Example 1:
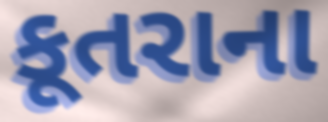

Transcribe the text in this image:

કૂતરાના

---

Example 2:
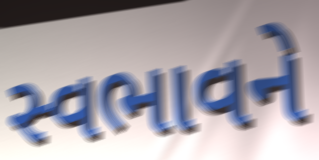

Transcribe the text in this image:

સ્વભાવને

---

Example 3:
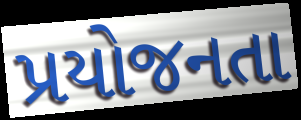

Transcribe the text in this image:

પ્રયોજનતા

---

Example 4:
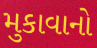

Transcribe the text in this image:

મુકાવાનો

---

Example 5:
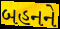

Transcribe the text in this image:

બહનને